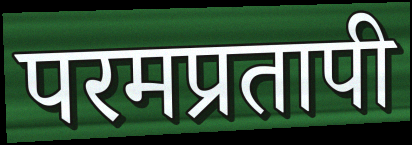
परमप्रतापी